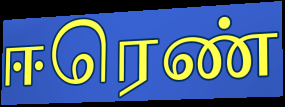
ஈரெண்